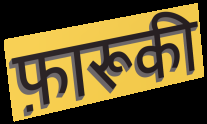
फ़ारूकी